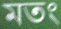
মতং